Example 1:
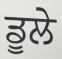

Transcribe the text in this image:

ਡੂਲੇ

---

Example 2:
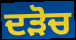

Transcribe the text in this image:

ਦੜੋਚ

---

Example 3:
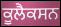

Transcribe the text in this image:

ਕੂਲੈਕਸਨ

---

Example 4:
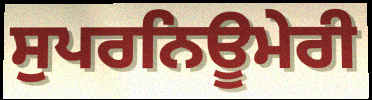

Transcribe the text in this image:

ਸੁਪਰਨਿਊਮੇਰੀ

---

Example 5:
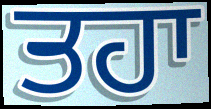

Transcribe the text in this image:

ਤਹਾ